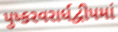
પુષ્કરવરાર્ધદ્વીપમાં